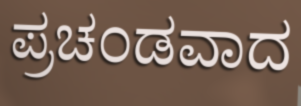
ಪ್ರಚಂಡವಾದ